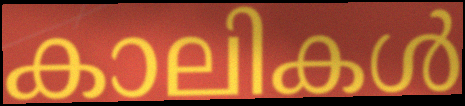
കാലികൾ